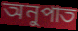
অনুপাত